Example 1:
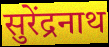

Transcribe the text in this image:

सुरेंद्रनाथ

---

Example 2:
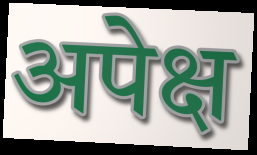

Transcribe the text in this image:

अपेक्ष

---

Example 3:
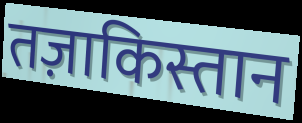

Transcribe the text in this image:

तज़ाकिस्तान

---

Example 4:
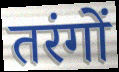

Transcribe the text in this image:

तरंगों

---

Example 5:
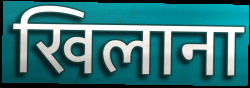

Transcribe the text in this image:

खिलाना